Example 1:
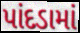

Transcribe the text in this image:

પાંદડામાં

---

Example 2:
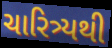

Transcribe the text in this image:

ચારિત્ર્યથી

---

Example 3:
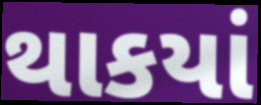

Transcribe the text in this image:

થાકયાં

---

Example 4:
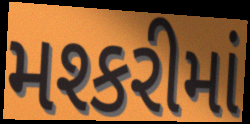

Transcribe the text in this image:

મશ્કરીમાં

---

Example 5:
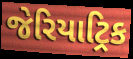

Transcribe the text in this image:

જેરિયાટ્રિક